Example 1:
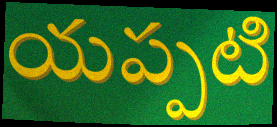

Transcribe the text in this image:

యప్పటి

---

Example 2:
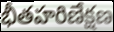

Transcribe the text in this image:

భీతహరిణేక్షణ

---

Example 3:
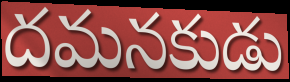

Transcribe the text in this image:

దమనకుడు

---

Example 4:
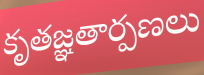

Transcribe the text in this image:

కృతజ్ఞతార్పణలు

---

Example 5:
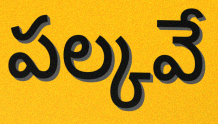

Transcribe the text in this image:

పల్కవే